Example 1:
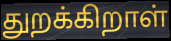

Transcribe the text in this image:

துறக்கிறாள்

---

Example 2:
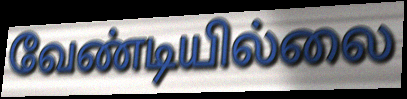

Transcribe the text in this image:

வேண்டியில்லை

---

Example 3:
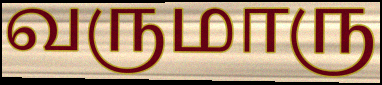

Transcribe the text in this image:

வருமாரு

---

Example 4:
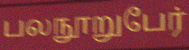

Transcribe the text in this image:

பலநூறுபேர்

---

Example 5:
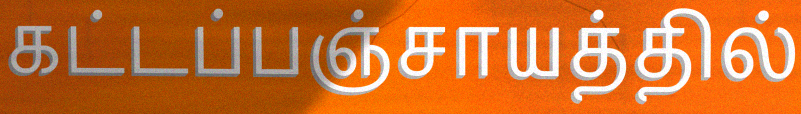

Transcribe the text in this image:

கட்டப்பஞ்சாயத்தில்